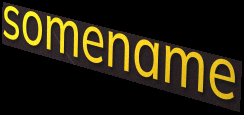
somename